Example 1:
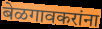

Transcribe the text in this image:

बेळगावकरांना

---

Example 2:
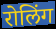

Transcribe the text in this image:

रोलिंग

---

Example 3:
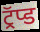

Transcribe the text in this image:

ट्रॅप्ड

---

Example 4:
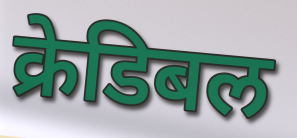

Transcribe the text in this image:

क्रेडिबल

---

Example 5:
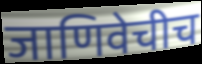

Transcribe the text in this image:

जाणिवेचीच